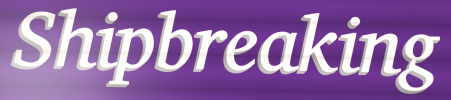
Shipbreaking